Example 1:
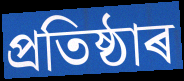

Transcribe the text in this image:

প্ৰতিষ্ঠাৰ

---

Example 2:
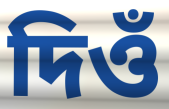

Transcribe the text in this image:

দিওঁ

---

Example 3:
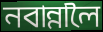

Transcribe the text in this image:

নবান্নালৈ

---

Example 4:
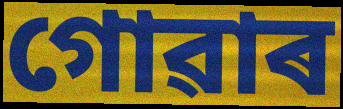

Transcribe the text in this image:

গোৱাৰ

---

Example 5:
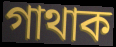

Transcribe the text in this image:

গাথাক